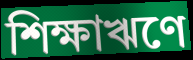
শিক্ষাঋণে